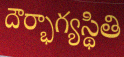
దౌర్భాగ్యస్థితి